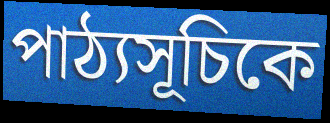
পাঠ্যসূচিকে